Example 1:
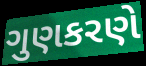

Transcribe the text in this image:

ગુણકરણે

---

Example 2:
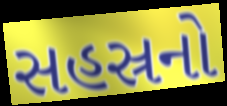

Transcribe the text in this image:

સહસ્રનો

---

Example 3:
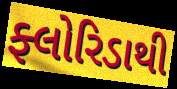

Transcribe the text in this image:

ફ્લોરિડાથી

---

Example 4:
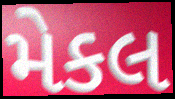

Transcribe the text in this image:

મેકલ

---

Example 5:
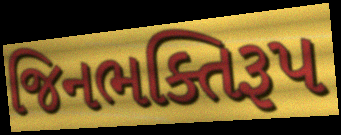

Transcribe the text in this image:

જિનભક્તિરૂપ